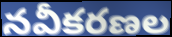
నవీకరణల